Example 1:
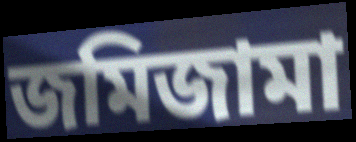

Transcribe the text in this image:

জমিজামা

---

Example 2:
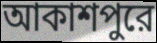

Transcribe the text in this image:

আকাশপুরে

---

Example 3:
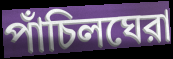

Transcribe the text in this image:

পাঁচিলঘেরা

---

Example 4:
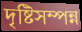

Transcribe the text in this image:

দৃষ্টিসম্পন্ন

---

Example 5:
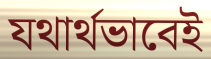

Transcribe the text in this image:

যথার্থভাবেই